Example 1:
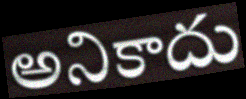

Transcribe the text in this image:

అనికాదు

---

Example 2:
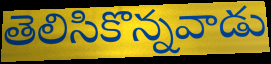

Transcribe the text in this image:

తెలిసికొన్నవాడు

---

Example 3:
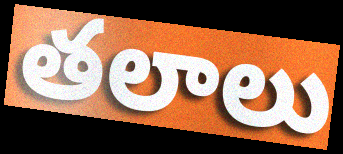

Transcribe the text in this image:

తలాలు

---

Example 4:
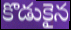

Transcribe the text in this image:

కొడుకైన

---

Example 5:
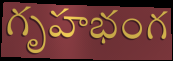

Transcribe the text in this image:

గృహభంగ